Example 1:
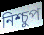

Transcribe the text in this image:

নিশ্চুপ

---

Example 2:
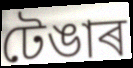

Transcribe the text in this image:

টেঙাৰ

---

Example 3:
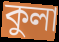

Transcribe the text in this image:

কুলা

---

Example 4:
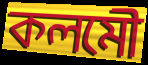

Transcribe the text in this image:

কলমৌ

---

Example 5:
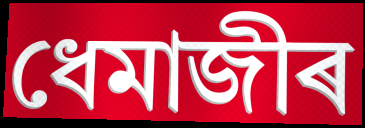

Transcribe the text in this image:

ধেমাজীৰ